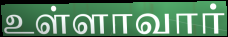
உள்ளாவார்